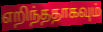
எறிந்ததாகவும்